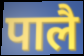
पालै